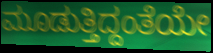
ಮೂಡುತ್ತಿದ್ದಂತೆಯೇ